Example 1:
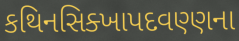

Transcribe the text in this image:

કથિનસિક્ખાપદવણ્ણના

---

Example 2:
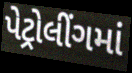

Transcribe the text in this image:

પેટ્રોલીંગમાં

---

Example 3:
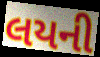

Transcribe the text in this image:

લયની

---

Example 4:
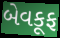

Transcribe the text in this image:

બેવકૂફ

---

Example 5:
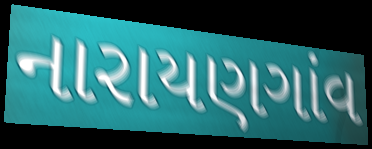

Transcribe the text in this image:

નારાયણગાંવ